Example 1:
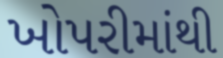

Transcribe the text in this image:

ખોપરીમાંથી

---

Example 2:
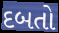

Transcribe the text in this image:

દબતો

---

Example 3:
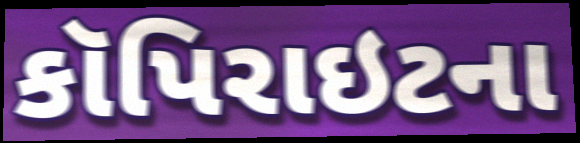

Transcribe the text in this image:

કૉપિરાઇટના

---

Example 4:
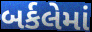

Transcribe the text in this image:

બર્કલેમાં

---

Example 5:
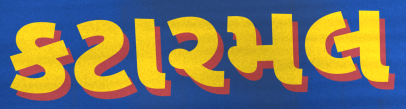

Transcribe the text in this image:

કટારમલ